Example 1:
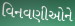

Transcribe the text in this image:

વિનવણીઓને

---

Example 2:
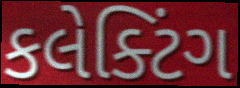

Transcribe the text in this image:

કલેક્ટિંગ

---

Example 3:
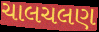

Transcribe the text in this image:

ચાલચલણ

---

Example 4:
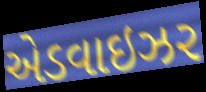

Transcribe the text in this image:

એડવાઇઝર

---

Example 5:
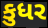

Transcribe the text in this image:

કુધર